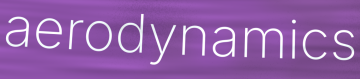
aerodynamics